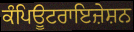
ਕੰਪਿਊਟਰਾਇਜ਼ੇਸ਼ਨ